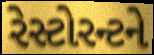
રેસ્ટોરન્ટને